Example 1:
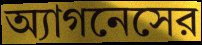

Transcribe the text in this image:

অ্যাগনেসের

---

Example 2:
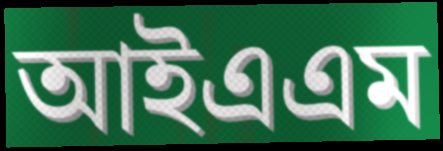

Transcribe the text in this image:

আইএএম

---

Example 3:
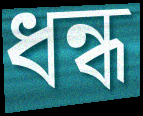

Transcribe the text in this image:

ধন্ধ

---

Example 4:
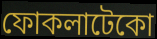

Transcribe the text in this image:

ফোকলাটেকো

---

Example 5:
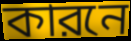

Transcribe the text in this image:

কারনে